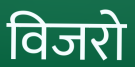
विजरो